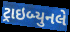
ટ્રાઇબ્યુનલે